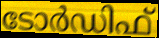
ടോർഡിഫ്